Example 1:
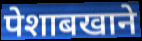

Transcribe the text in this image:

पेशाबखाने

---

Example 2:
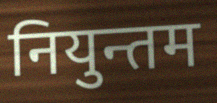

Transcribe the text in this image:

नियुन्तम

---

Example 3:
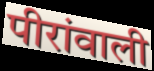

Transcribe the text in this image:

पीरांवाली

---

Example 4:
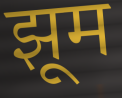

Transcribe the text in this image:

झूम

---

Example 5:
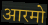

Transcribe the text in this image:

आरमो